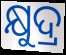
କ୍ଷୁଦ୍ର